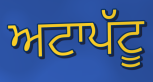
ਅਟਾਪੱਟੂ